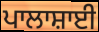
ਪਾਲਾਸ਼ਾਈ